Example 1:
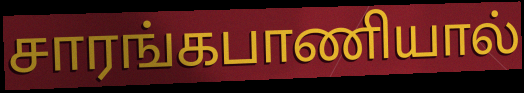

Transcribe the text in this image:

சாரங்கபாணியால்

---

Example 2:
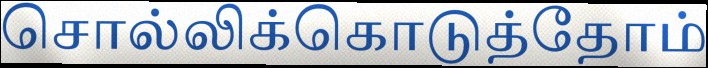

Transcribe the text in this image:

சொல்லிக்கொடுத்தோம்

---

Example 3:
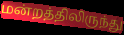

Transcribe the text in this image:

மன்றத்திலிருந்து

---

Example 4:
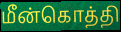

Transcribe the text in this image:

மீன்கொத்தி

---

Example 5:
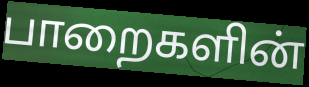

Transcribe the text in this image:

பாறைகளின்